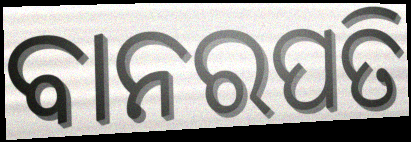
ବାନରପତି